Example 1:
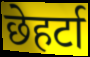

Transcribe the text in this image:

छेहर्टा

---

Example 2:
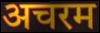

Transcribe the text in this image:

अचरम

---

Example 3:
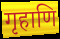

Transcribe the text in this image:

गृहाणि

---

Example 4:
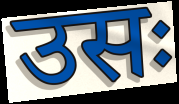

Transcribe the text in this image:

उसः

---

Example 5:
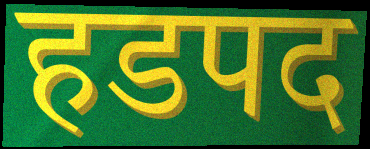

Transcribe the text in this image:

हडपद